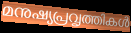
മനുഷ്യപ്രവൃത്തികൾ